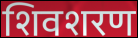
शिवशरण